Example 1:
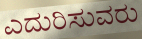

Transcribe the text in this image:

ಎದುರಿಸುವರು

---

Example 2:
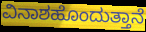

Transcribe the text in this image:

ವಿನಾಶಹೊಂದುತ್ತಾನೆ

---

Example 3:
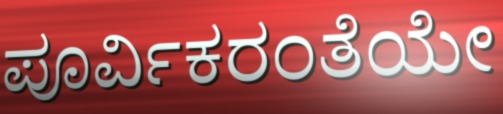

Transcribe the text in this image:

ಪೂರ್ವಿಕರಂತೆಯೇ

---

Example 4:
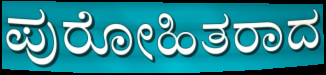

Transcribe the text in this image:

ಪುರೋಹಿತರಾದ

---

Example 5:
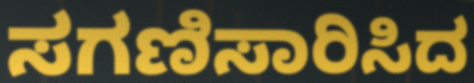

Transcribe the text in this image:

ಸಗಣಿಸಾರಿಸಿದ